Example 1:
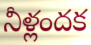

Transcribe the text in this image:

నీళ్లందక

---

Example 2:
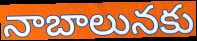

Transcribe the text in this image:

నాబాలునకు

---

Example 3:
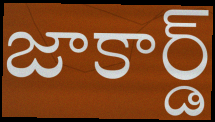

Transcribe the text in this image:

జాకార్డ్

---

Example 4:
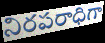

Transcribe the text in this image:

నిరపరాధిగా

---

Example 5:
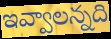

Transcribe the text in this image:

ఇవ్వాలన్నది